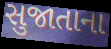
સુજાતાના